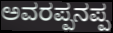
ಅವರಪ್ಪನಪ್ಪ